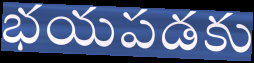
భయపడకు